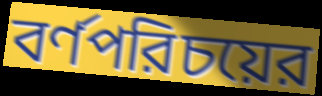
বর্ণপরিচয়ের